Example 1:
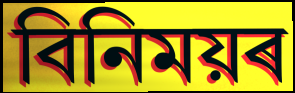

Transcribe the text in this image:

বিনিময়ৰ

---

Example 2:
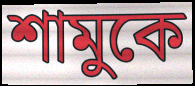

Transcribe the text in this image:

শামুকে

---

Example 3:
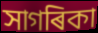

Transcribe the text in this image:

সাগৰিকা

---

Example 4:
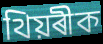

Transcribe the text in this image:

থিয়ৰীক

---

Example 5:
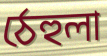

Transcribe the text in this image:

ঠেহুলা